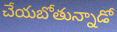
చేయబోతున్నాడో